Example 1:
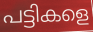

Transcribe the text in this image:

പട്ടികളെ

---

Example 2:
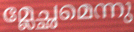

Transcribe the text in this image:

മ്ലേച്ഛമെന്നു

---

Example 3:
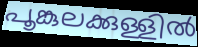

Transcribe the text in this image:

പൂങ്കുലക്കുള്ളിൽ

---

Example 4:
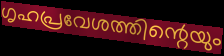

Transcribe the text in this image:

ഗൃഹപ്രവേശത്തിന്റെയും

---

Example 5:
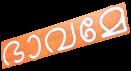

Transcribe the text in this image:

ഭാവമേ